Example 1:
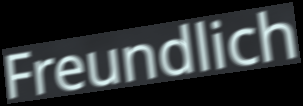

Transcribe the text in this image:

Freundlich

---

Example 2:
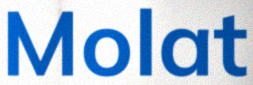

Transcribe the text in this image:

Molat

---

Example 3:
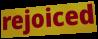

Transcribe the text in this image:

rejoiced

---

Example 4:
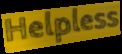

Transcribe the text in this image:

Helpless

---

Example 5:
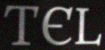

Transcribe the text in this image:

TEL